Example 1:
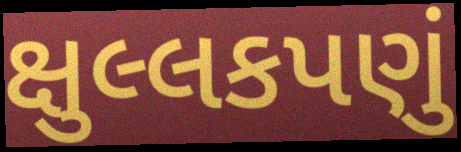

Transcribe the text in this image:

ક્ષુલ્લકપણું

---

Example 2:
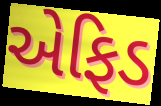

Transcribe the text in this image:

એફિડ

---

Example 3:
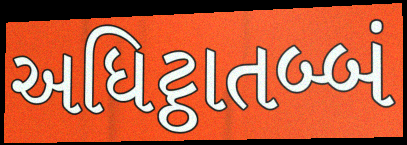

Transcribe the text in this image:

અધિટ્ઠાતબ્બં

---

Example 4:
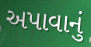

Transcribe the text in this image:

અપાવાનું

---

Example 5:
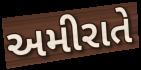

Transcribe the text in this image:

અમીરાતે